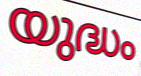
യുദ്ധം